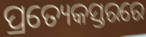
ପ୍ରତ୍ୟେକସ୍ତରରେ